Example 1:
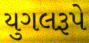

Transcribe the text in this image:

યુગલરૂપે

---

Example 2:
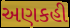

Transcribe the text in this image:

અણકહી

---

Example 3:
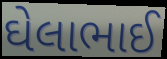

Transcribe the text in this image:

ઘેલાભાઈ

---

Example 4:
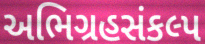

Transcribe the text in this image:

અભિગ્રહસંકલ્પ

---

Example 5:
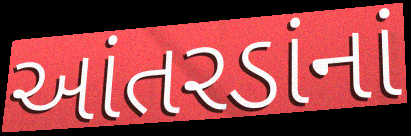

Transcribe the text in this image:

આંતરડાંનાં